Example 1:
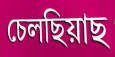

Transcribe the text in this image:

চেলছিয়াছ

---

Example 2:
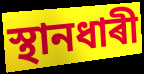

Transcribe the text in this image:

স্থানধাৰী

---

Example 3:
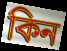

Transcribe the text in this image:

কিন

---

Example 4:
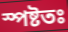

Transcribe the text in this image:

স্পষ্টতঃ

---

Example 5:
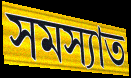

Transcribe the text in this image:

সমস্যাত